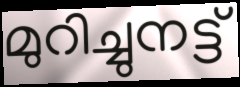
മുറിച്ചുനട്ട്